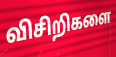
விசிறிகளை